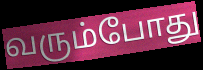
வரும்போது